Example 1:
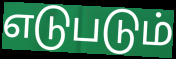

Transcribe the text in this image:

எடுபடும்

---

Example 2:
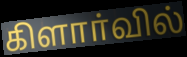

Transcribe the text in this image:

கிளார்வில்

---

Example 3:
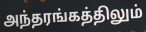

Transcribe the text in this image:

அந்தரங்கத்திலும்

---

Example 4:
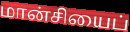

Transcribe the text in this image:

மான்சியைப்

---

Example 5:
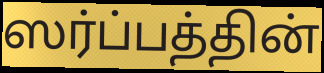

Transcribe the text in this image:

ஸர்ப்பத்தின்